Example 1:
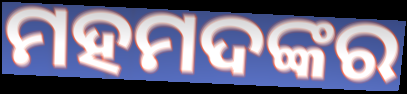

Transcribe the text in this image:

ମହମଦଙ୍କର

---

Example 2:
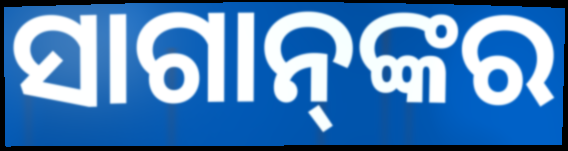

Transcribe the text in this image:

ସାଗାନ୍‌ଙ୍କର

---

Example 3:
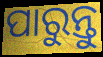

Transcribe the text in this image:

ପାରୁନ୍ତୁ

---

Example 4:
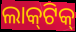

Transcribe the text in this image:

ଲାକ୍‌ଟିକ୍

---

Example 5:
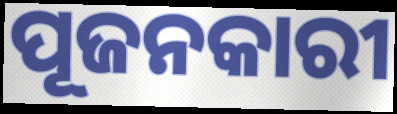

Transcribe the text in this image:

ପୂଜନକାରୀ